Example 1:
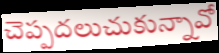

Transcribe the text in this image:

చెప్పదలుచుకున్నావో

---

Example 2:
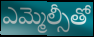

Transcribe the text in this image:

ఎమ్మెల్సీతో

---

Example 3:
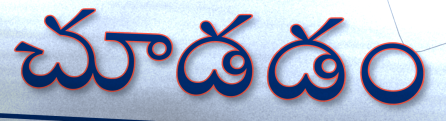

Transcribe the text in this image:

చూడడం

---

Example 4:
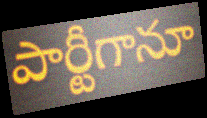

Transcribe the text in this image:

పార్టీగానూ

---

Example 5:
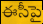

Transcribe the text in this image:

ఈసీపై